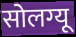
सोलग्यू